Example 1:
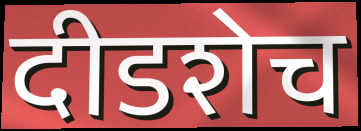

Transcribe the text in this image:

दीडशेच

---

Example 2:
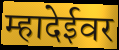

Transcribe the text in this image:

म्हादेईवर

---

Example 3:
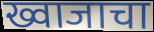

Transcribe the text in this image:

ख्वाजाचा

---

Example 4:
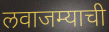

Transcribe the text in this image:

लवाजम्याची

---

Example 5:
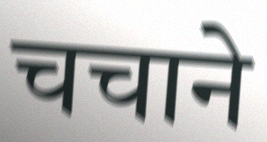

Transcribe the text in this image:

चचाने